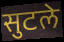
सुटले